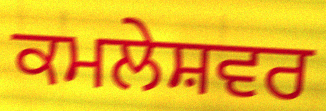
ਕਮਲੇਸ਼ਵਰ